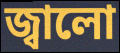
জ্বালো